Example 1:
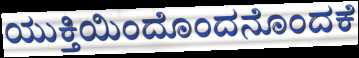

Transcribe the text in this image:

ಯುಕ್ತಿಯಿಂದೊಂದನೊಂದಕೆ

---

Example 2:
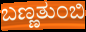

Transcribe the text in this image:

ಬಣ್ಣತುಂಬಿ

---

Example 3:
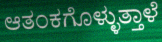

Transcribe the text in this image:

ಆತಂಕಗೊಳ್ಳುತ್ತಾಳೆ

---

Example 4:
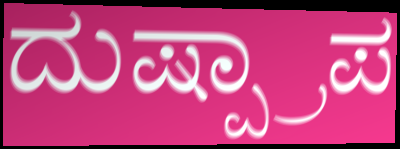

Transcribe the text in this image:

ದುಷ್ಪ್ರಾಪ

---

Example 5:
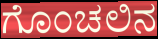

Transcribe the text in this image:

ಗೊಂಚಲಿನ